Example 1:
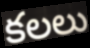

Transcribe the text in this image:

కలలు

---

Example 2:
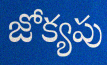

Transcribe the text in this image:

జోక్యపు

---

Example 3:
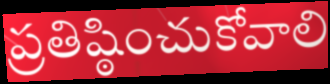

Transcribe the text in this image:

ప్రతిష్ఠించుకోవాలి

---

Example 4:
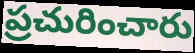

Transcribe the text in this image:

ప్రచురించారు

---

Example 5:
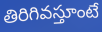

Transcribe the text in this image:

తిరిగివస్తూంటే